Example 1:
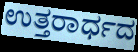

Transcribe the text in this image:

ಉತ್ತರಾರ್ಧದ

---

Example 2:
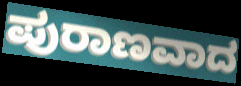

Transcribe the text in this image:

ಪುರಾಣವಾದ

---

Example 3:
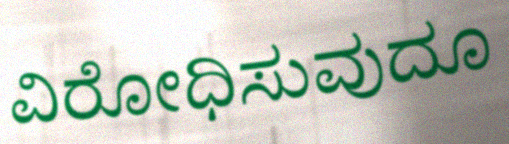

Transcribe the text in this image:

ವಿರೋಧಿಸುವುದೂ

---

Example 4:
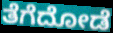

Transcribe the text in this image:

ತೆಗೆದೋಡೆ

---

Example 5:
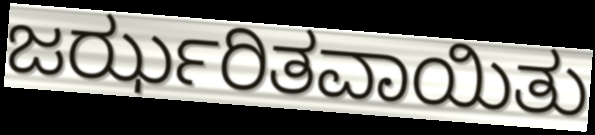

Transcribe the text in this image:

ಜರ್ಝರಿತವಾಯಿತು